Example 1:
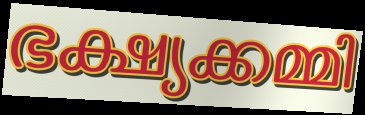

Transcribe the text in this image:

ഭക്ഷ്യക്കമ്മി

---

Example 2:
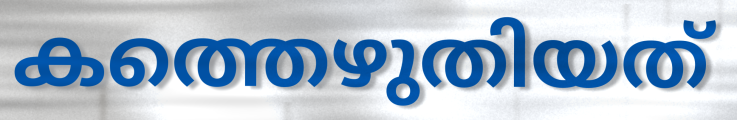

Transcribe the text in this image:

കത്തെഴുതിയത്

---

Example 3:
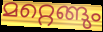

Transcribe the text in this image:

മറ്റെങ്ങും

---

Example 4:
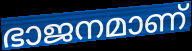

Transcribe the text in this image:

ഭാജനമാണ്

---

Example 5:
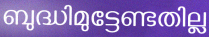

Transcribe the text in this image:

ബുദ്ധിമുട്ടേണ്ടതില്ല